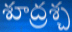
శూద్రశ్చ